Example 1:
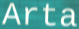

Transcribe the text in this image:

Arta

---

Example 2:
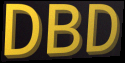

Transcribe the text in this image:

DBD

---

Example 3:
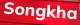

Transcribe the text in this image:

Songkha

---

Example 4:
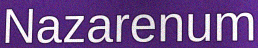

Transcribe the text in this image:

Nazarenum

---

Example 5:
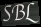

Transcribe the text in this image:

SBL